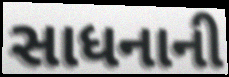
સાધનાની